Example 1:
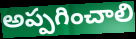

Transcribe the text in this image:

అప్పగించాలి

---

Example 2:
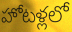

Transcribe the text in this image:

హోటళ్లలో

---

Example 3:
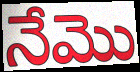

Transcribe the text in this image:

నేమొ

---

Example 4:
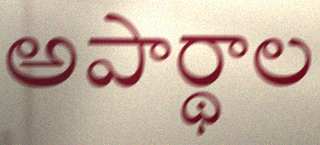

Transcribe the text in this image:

అపార్థాల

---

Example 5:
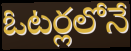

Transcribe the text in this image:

ఓటర్లలోనే